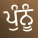
ਪੁੰਨੂੰ